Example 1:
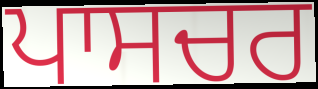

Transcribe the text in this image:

ਪਾਸਚਰ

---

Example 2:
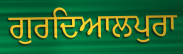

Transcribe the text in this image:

ਗੁਰਦਿਆਲਪੁਰਾ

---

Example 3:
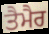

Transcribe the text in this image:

ਤੈਮੈਰ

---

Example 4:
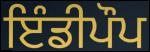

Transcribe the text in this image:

ਇੰਡੀਪੌਪ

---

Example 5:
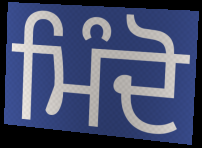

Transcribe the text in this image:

ਮਿੰਦੋ